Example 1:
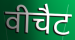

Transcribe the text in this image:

वीचैट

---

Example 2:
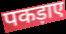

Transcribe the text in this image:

पकड़ाए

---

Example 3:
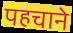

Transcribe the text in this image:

पहचाने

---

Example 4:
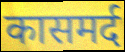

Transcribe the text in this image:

कासमर्द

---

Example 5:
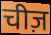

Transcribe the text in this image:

चीज़